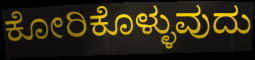
ಕೋರಿಕೊಳ್ಳುವುದು